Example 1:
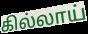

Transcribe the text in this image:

கில்லாய்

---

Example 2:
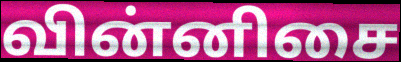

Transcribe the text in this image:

வின்னிசை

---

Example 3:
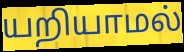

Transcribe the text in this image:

யறியாமல்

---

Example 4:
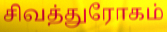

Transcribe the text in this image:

சிவத்துரோகம்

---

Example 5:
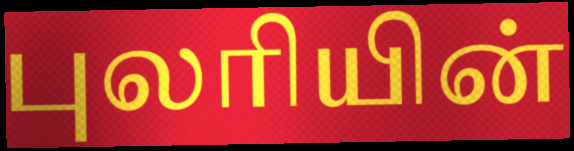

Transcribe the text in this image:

புலரியின்